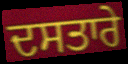
ਦਸਤਾਰੇ